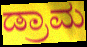
ಡ್ರಾಮ